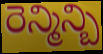
రెన్మిన్బి